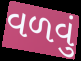
વળવું